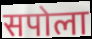
सपोला